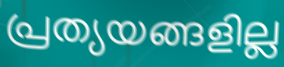
പ്രത്യയങ്ങളില്ല